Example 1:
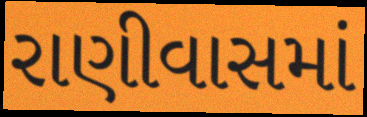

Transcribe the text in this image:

રાણીવાસમાં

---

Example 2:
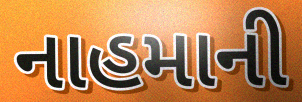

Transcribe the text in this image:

નાહમાની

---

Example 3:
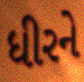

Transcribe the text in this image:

ધીરને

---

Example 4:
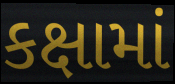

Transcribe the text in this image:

કક્ષામાં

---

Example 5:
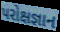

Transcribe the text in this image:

પરોક્ષજ્ઞાન